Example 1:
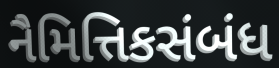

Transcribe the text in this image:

નૈમિત્તિકસંબંધ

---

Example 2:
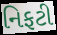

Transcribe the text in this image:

નિફટી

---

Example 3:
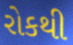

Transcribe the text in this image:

રોકથી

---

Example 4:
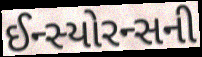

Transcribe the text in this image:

ઈન્સ્યોરન્સની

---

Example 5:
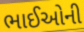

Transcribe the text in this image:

ભાઈઓની